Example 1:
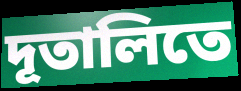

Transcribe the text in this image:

দূতালিতে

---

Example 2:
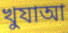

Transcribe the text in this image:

খুযাআ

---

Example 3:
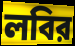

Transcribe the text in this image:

লবির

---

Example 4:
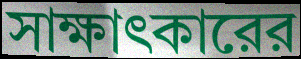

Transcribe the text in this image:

সাক্ষাৎকারের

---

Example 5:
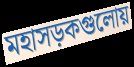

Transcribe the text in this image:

মহাসড়কগুলোয়